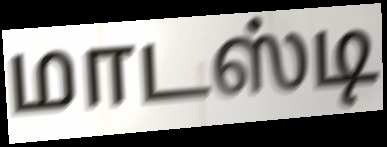
மாடஸ்டி